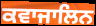
ਕਵਾਜਾਲਿਨ